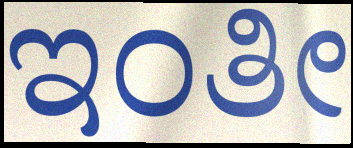
ಇಂತೀ